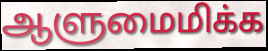
ஆளுமைமிக்க